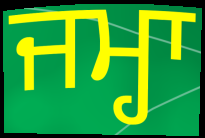
ਜਮ੍ਹਾ